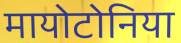
मायोटोनिया